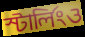
স্টার্লিংও